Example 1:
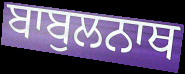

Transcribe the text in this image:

ਬਾਬੁਲਨਾਥ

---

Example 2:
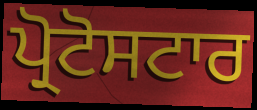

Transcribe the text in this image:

ਪ੍ਰੋਟੋਸਟਾਰ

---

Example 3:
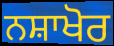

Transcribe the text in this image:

ਨਸ਼ਾਖੋਰ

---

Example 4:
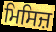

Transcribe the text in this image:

ਮਿਸਿਜ਼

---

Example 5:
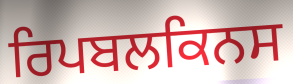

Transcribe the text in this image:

ਰਿਪਬਲਕਿਨਸ